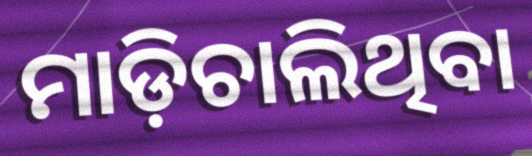
ମାଡ଼ିଚାଲିଥିବା